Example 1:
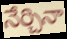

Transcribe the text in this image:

నేర్చినా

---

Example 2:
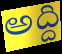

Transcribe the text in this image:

అద్ది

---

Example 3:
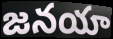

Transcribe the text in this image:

జనయా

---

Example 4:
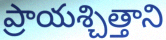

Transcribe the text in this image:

ప్రాయశ్చిత్తాని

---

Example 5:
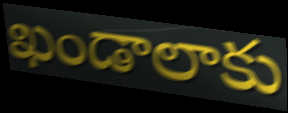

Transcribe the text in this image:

ఖండాలాకు